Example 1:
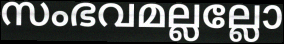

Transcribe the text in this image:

സംഭവമല്ലല്ലോ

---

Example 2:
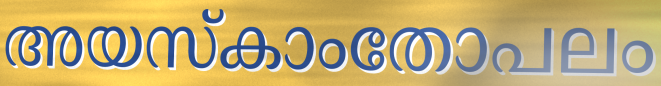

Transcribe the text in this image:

അയസ്കാംതോപലം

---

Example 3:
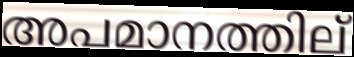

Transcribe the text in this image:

അപമാനത്തില്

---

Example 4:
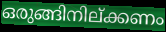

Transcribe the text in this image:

ഒരുങ്ങിനില്ക്കണം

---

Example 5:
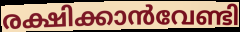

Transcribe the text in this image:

രക്ഷിക്കാൻവേണ്ടി